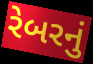
રેબરનું